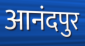
आनंदपुर